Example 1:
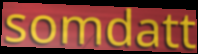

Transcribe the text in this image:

somdatt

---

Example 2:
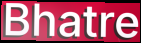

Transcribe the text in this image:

Bhatre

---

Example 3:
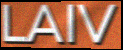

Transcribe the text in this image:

LAIV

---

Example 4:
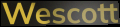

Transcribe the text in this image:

Wescott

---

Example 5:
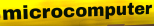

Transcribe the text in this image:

microcomputer